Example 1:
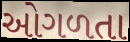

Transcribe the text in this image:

ઓગળતા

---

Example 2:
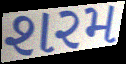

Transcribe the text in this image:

શરમ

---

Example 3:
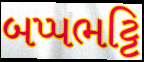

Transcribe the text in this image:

બપ્પભટ્ટિ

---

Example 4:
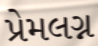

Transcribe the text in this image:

પ્રેમલગ્ન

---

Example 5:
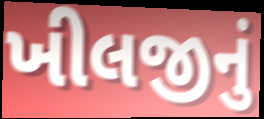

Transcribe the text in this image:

ખીલજીનું